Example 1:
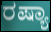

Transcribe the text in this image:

ರಷ್ಯಾ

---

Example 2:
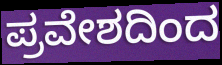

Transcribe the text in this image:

ಪ್ರವೇಶದಿಂದ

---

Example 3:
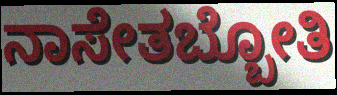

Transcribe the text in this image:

ನಾಸೇತಬ್ಬೋತಿ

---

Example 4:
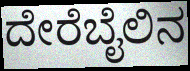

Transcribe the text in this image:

ದೇರೆಬೈಲಿನ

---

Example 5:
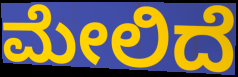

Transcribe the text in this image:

ಮೇಲಿದೆ